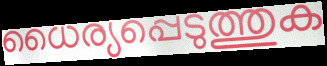
ധൈര്യപ്പെടുത്തുക